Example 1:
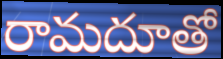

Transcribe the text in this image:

రామదూతో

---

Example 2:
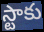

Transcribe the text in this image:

స్టాకు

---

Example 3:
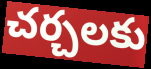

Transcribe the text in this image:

చర్చలకు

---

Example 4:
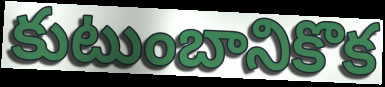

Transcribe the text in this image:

కుటుంబానికొక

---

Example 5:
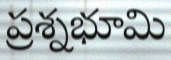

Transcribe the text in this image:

ప్రశ్నభూమి